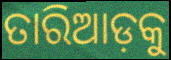
ତାରିଆଡ଼କୁ